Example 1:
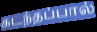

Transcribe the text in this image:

கடந்தப்பால்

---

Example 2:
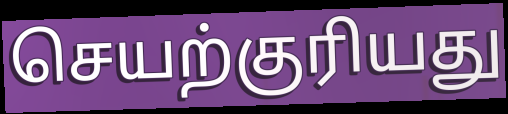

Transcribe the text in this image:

செயற்குரியது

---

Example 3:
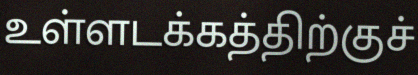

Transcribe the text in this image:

உள்ளடக்கத்திற்குச்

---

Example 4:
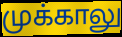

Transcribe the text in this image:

முக்காலு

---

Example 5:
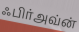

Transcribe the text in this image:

ஃபிர்அவ்ன்